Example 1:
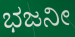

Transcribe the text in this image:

ಭಜನೀ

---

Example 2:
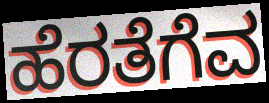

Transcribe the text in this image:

ಹೆರತೆಗೆವ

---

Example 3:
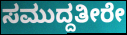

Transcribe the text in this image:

ಸಮುದ್ದತೀರೇ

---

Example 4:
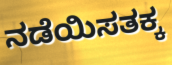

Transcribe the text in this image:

ನಡೆಯಿಸತಕ್ಕ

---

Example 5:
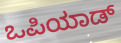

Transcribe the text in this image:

ಒಪಿಯಾಡ್